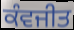
ਕੰਵਜੀਤ